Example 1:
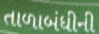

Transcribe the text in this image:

તાળાબંધીની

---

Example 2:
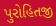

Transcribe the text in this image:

પુરોહિતજી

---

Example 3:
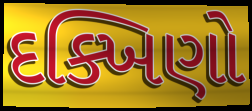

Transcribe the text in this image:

દક્ખિણો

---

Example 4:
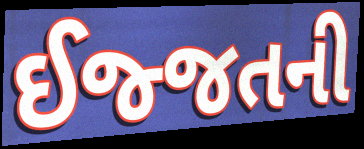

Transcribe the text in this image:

ઈજ્જતની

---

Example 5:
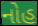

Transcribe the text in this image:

નોહ